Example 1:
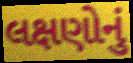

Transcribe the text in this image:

લક્ષણોનું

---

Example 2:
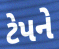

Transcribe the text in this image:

ટેપને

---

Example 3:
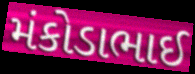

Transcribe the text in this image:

મંકોડાભાઈ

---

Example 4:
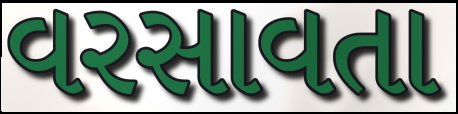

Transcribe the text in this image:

વરસાવતા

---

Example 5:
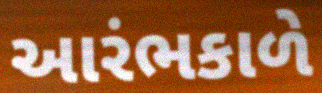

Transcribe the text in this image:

આરંભકાળે